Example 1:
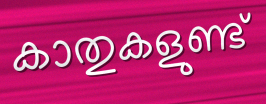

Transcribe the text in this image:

കാതുകളുണ്ട്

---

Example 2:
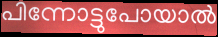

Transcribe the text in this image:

പിന്നോട്ടുപോയാൽ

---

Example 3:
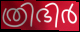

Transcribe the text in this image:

ത്രിഭിർ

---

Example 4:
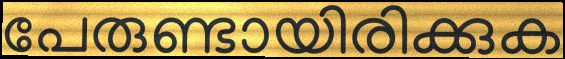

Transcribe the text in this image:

പേരുണ്ടായിരിക്കുക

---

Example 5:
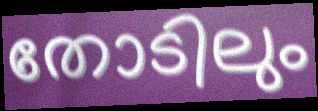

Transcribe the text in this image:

തോടിലും